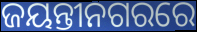
ଜୟନ୍ତୀନଗରରେ